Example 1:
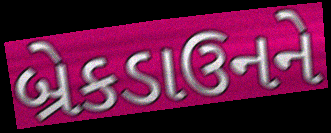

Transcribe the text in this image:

બ્રેકડાઉનને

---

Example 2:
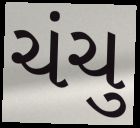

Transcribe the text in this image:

ચંચુ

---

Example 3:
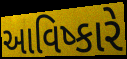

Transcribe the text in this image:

આવિષ્કારે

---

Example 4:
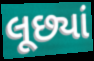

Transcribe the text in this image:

લૂછ્યાં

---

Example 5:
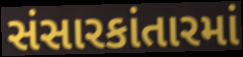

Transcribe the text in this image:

સંસારકાંતારમાં